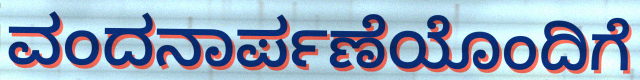
ವಂದನಾರ್ಪಣೆಯೊಂದಿಗೆ